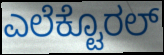
ಎಲೆಕ್ಟೊರಲ್